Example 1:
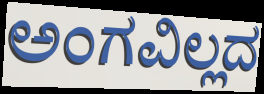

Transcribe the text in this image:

ಅಂಗವಿಲ್ಲದ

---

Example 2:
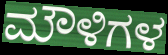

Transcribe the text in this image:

ಮೌಳಿಗಳ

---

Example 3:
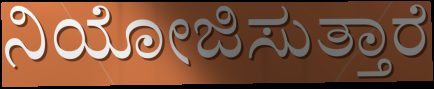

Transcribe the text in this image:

ನಿಯೋಜಿಸುತ್ತಾರೆ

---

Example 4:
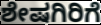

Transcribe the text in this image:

ಶೇಷಗಿರಿಗೆ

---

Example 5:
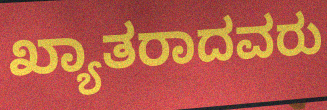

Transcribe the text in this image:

ಖ್ಯಾತರಾದವರು